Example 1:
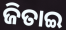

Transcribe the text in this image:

ଜିତାଇ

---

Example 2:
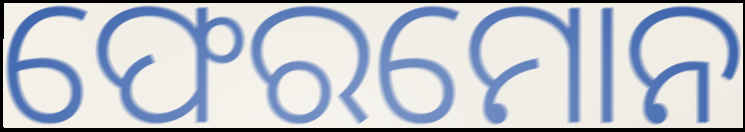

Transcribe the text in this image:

ଫେରମୋନ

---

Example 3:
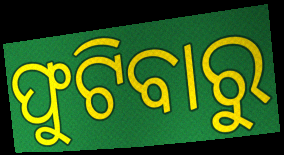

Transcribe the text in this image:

ଫୁଟିବାରୁ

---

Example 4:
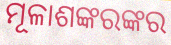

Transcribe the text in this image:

ମୂଳାଶଙ୍କରଙ୍କର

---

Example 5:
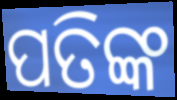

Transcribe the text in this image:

ପତିଙ୍କ